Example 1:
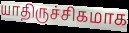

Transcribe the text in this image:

யாதிருச்சிகமாக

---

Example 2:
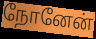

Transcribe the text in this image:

நோனேன்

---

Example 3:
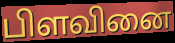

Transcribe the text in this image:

பிளவினை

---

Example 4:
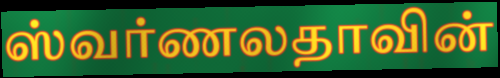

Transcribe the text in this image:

ஸ்வர்ணலதாவின்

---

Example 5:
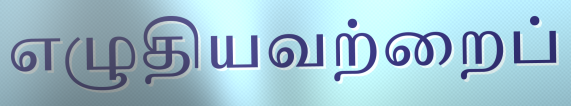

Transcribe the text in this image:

எழுதியவற்றைப்